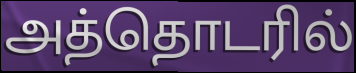
அத்தொடரில்